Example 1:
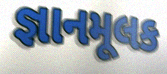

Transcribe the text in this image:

જ્ઞાનમૂલક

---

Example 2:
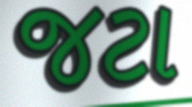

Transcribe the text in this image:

જટા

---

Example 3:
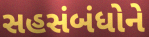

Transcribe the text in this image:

સહસંબંધોને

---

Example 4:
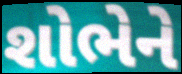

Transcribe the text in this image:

શોભેને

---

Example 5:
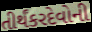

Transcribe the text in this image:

તીર્થંકરદેવોની